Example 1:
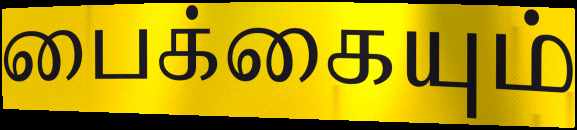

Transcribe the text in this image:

பைக்கையும்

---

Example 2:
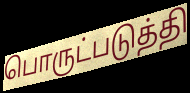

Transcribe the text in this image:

பொருட்படுத்தி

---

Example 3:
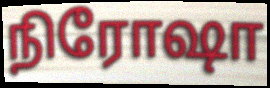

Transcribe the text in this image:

நிரோஷா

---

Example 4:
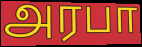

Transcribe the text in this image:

அரபா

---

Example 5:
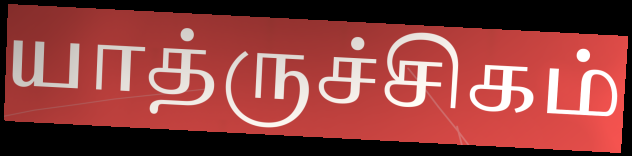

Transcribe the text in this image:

யாத்ருச்சிகம்